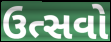
ઉત્સવો